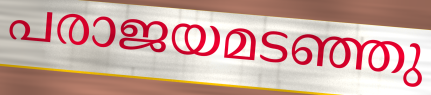
പരാജയമടഞ്ഞു